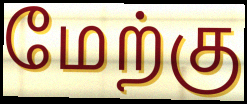
மேற்கு